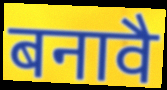
बनावै